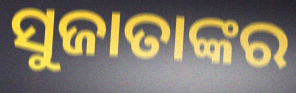
ସୁଜାତାଙ୍କର